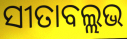
ସୀତାବଲ୍ଲଭ